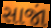
સાજાં